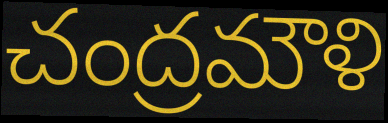
చంద్రమౌళి